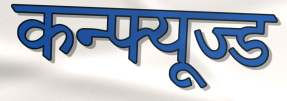
कन्फ्यूज्ड